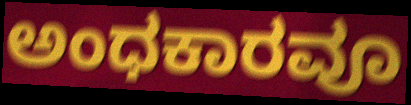
ಅಂಧಕಾರವೂ